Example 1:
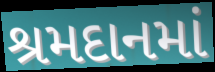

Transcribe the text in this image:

શ્રમદાનમાં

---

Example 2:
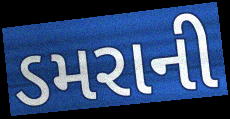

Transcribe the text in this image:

ડમરાની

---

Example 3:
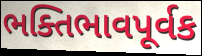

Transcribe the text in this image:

ભક્તિભાવપૂર્વક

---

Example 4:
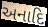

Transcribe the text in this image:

અનાદિ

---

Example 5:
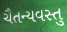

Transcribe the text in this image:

ચૈતન્યવસ્તુ